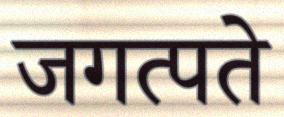
जगत्पते